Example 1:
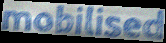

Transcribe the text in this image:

mobilised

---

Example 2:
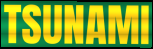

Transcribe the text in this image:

TSUNAMI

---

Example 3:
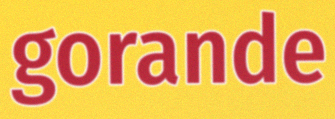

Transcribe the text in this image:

gorande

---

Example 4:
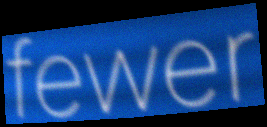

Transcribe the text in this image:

fewer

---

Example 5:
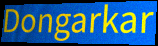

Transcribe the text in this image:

Dongarkar